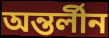
অন্তর্লীন